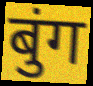
बुंग